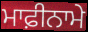
ਮਾਫ਼ੀਨਾਮੇ